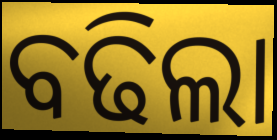
ବଢିଲା